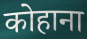
कोहाना